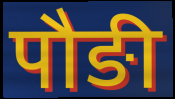
पौङी